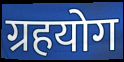
ग्रहयोग